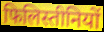
फिलिस्तीनियों